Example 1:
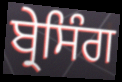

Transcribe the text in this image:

ਬ੍ਰੇਸਿੰਗ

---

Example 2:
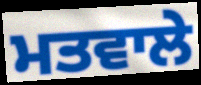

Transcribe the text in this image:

ਮਤਵਾਲੇ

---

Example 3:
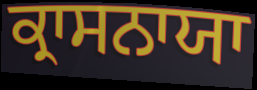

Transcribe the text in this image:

ਕ੍ਰਾਸਨਾਯਾ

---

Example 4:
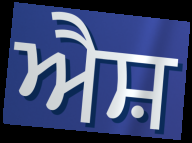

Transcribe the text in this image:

ਐਸ਼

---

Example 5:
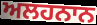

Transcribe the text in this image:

ਅਲਹਨਾਨ